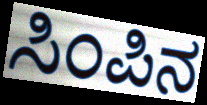
ಸಿಂಪಿನ